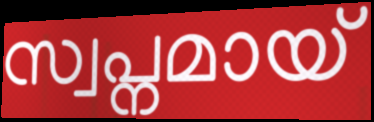
സ്വപ്നമായ്